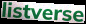
listverse